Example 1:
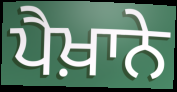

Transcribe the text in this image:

ਪੈਖ਼ਾਨੇ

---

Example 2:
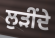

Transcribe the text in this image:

ਲੁੜੀਂਦੇ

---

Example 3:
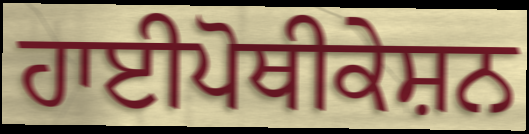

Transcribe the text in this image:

ਹਾਈਪੋਥੀਕੇਸ਼ਨ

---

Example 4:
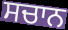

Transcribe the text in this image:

ਸਚਾਨ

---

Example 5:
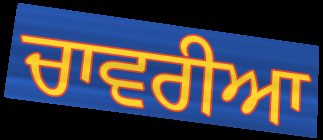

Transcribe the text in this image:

ਚਾਵਰੀਆ